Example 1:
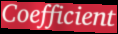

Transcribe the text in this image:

Coefficient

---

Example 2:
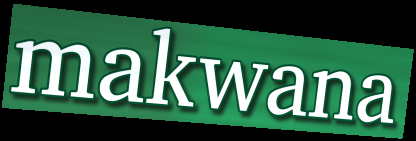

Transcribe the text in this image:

makwana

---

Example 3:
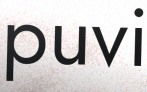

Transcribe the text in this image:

puvi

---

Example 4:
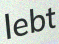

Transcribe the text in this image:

lebt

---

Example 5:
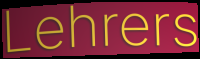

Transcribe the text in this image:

Lehrers